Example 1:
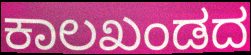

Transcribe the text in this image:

ಕಾಲಖಂಡದ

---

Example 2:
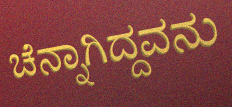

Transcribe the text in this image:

ಚೆನ್ನಾಗಿದ್ದವನು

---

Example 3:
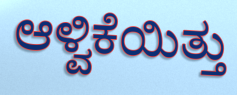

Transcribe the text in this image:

ಆಳ್ವಿಕೆಯಿತ್ತು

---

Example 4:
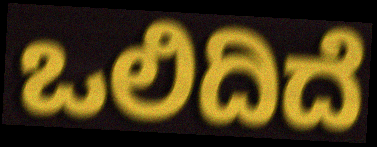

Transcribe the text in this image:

ಒಲಿದಿದೆ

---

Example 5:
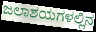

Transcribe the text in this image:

ಜಲಾಶಯಗಳಲ್ಲಿನ